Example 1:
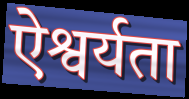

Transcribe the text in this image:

ऐश्वर्यता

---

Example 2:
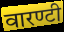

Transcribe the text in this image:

वारण्टी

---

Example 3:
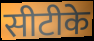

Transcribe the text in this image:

सीटीके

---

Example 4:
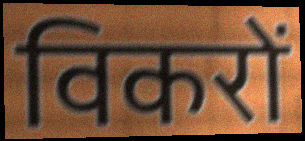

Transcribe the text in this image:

विकरों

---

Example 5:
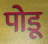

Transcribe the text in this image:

पोडू